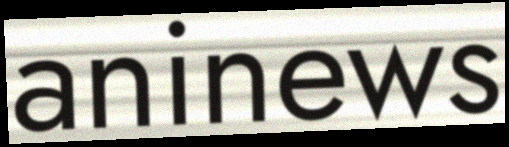
aninews